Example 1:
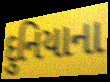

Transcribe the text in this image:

દુનિયાના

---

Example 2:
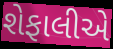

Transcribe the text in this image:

શેફાલીએ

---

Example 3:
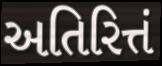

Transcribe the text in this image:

અતિરિત્તં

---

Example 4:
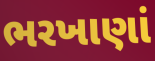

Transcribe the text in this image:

ભરખાણાં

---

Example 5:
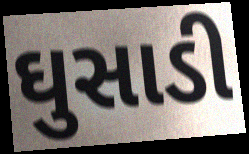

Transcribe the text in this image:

ઘુસાડી